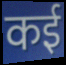
कई